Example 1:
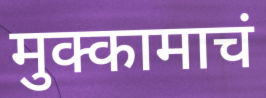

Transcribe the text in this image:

मुक्कामाचं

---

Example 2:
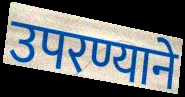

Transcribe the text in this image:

उपरण्याने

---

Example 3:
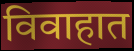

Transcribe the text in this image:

विवाहात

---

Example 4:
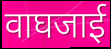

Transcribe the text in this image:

वाघजाई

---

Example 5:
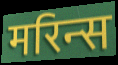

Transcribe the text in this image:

मरिन्स